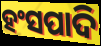
ହଂସପାଦି